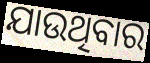
ଯାଉଥିବାର